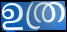
ഉത്ര